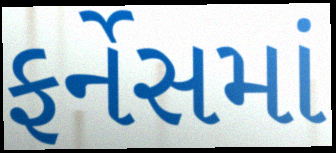
ફર્નેસમાં